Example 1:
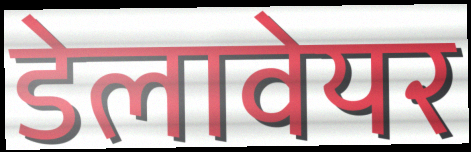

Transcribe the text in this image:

डेलावेयर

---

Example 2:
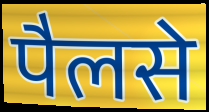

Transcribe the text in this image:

पैलसे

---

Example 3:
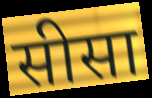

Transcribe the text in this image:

सीसा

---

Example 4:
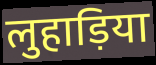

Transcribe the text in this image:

लुहाड़िया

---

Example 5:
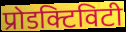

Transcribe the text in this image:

प्रोडक्टिविटी